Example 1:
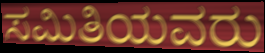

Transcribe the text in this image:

ಸಮಿತಿಯವರು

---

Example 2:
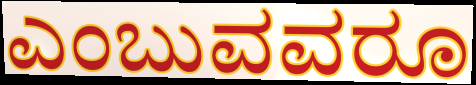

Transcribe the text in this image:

ಎಂಬುವವರೂ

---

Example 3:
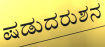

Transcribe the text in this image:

ಷಡುದರುಶನ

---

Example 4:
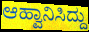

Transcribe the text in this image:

ಆಹ್ವಾನಿಸಿದ್ದು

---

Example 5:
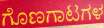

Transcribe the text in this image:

ಗೊಣಗಾಟಗಳ